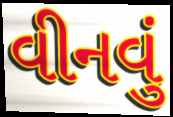
વીનવું